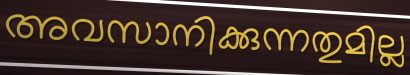
അവസാനിക്കുന്നതുമില്ല